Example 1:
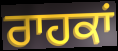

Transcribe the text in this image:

ਰਾਹਕਾਂ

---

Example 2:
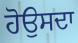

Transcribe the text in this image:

ਹੋਉਸਦਾ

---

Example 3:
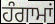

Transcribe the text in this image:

ਹੰਗਾਮਾਂ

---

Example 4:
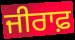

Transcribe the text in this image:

ਜੀਰਾਫ਼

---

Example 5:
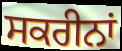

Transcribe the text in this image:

ਸਕਰੀਨਾਂ